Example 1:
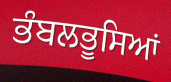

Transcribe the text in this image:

ਭੰਬਲਭੂਸਿਆਂ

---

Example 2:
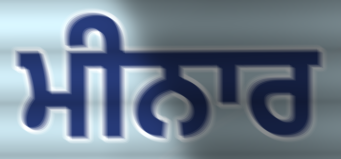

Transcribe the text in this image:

ਮੀਨਾਰ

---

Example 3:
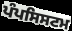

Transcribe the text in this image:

ਪੰਪਸਿਸਟਮ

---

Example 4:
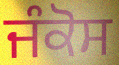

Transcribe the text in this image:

ਜੰਕੋਸ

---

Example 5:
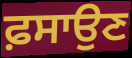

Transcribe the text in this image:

ਫ਼ਸਾਉਣ